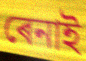
ৰেনাই